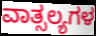
ವಾತ್ಸಲ್ಯಗಳ